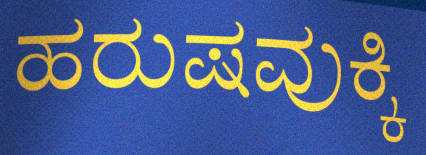
ಹರುಷವುಕ್ಕಿ